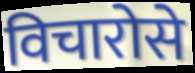
विचारोसे